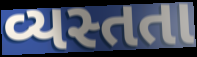
વ્યસ્તતા